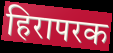
हिरापरक